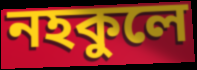
নহকুলে